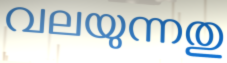
വലയുന്നതു